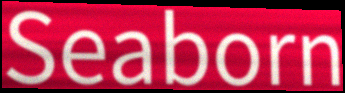
Seaborn